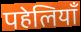
पहेलियाँ